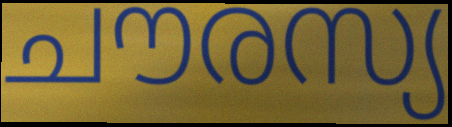
ചൗരസ്യ